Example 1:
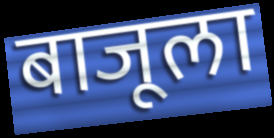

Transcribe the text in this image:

बाजूला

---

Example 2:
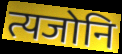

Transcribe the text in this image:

त्यजोनि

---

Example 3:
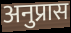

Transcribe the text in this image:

अनुप्रास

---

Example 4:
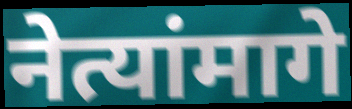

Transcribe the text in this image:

नेत्यांमागे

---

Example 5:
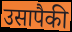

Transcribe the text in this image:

उसापैकी